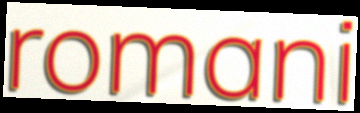
romani